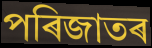
পৰিজাতৰ